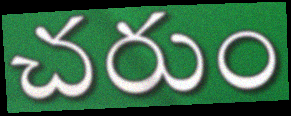
చరుం